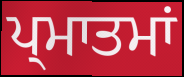
ਪ੍ਮਾਤਮਾਂ